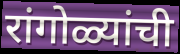
रांगोळ्यांची